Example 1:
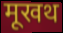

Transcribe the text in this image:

मूखथ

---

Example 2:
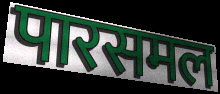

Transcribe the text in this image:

पारसमल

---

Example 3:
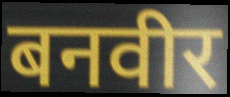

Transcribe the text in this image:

बनवीर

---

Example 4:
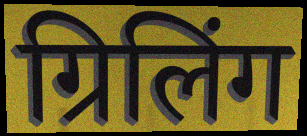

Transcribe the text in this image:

ग्रिलिंग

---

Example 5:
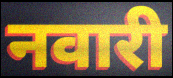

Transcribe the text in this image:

नवारी